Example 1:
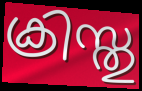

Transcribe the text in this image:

ക്രിസ്തു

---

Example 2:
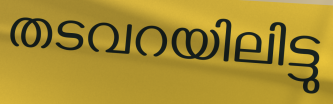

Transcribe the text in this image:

തടവറയിലിട്ടു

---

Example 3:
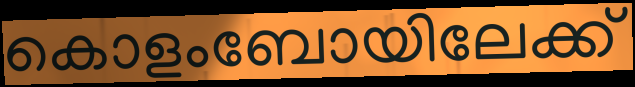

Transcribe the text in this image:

കൊളംബോയിലേക്ക്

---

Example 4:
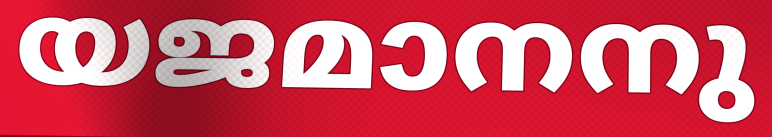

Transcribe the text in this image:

യജമാനനു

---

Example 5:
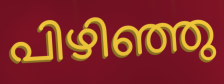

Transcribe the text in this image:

പിഴിഞ്ഞു